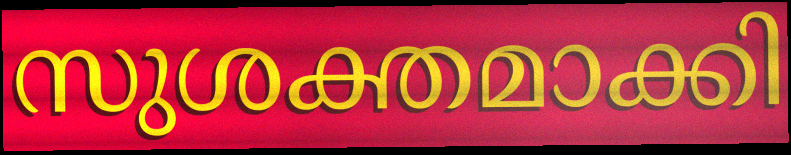
സുശക്തമാക്കി